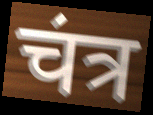
चंत्र